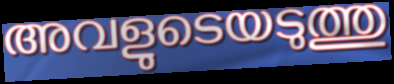
അവളുടെയടുത്തു